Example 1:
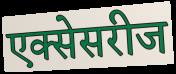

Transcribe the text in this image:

एक्सेसरीज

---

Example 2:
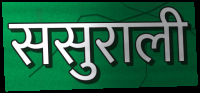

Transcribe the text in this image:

ससुराली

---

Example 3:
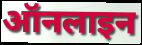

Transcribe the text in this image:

ऑनलाइन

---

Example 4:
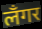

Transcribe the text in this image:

लँगर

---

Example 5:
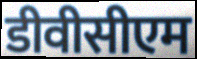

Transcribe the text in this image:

डीवीसीएम